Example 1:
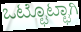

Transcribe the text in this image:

ಒಟ್ಟೊಟ್ಟಾಗಿ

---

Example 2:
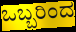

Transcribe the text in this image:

ಒಬ್ಬರಿಂದ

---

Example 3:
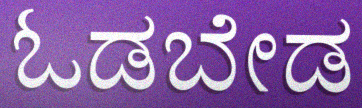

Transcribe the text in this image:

ಓಡಬೇಡ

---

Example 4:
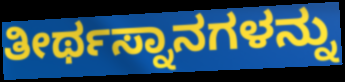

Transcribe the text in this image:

ತೀರ್ಥಸ್ನಾನಗಳನ್ನು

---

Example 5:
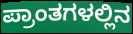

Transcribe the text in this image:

ಪ್ರಾಂತಗಳಲ್ಲಿನ